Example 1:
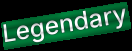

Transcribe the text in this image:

Legendary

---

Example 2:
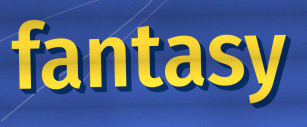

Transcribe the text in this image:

fantasy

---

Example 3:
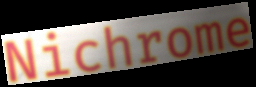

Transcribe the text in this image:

Nichrome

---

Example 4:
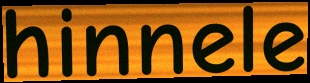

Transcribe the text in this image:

hinnele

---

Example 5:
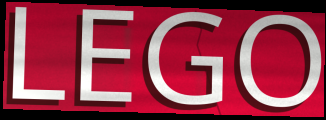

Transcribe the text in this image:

LEGO